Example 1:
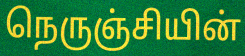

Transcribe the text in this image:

நெருஞ்சியின்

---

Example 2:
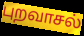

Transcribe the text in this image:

புறவாசல்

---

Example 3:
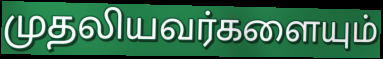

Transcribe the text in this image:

முதலியவர்களையும்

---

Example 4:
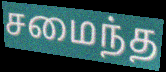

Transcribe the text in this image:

சமைந்த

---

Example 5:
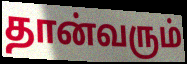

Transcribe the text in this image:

தான்வரும்